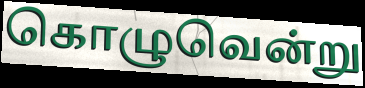
கொழுவென்று